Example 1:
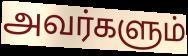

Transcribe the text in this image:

அவர்களும்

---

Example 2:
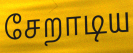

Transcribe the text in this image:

சேறாடிய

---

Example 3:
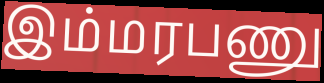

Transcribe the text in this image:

இம்மரபணு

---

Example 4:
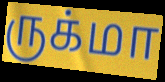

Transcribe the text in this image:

ருக்மா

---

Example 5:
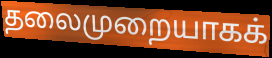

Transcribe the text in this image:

தலைமுறையாகக்